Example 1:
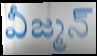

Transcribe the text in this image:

వీజ్మన్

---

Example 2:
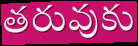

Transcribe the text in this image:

తరువుకు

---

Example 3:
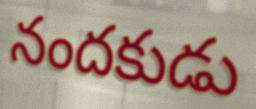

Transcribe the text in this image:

నందకుడు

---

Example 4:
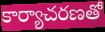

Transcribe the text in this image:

కార్యాచరణతో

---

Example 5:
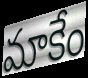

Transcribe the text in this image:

మాకేం